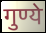
गुण्ये